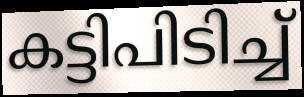
കട്ടിപിടിച്ച്